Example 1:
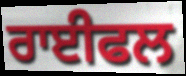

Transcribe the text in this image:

ਰਾਈਫਲ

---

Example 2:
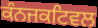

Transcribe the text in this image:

ਕੰਨਜਕਟਿਵਲ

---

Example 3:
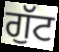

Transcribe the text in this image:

ਗੁੱਟ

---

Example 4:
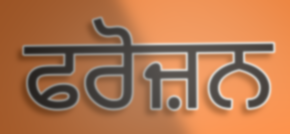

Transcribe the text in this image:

ਫਰੋਜ਼ਨ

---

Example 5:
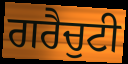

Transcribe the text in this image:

ਗਰੈਚੁਟੀ